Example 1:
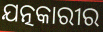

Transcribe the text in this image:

ଯତ୍ନକାରୀର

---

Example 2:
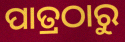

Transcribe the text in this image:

ପାତ୍ରଠାରୁ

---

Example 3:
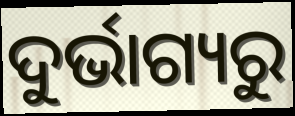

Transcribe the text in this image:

ଦୁର୍ଭାଗ୍ୟରୁ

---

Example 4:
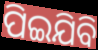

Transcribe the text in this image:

ପିଇଯିବି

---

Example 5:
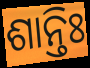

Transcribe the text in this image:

ଶାନ୍ତିଃ